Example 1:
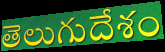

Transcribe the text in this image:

తెలుగుదేశం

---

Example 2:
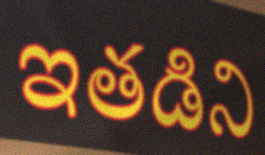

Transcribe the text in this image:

ఇతడిని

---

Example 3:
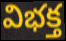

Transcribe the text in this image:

విభక్త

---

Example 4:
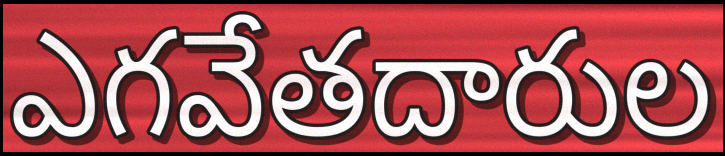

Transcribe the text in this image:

ఎగవేతదారుల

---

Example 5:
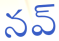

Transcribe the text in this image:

నవ్